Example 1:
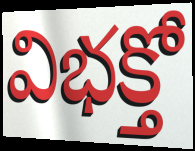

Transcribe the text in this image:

విభక్తో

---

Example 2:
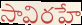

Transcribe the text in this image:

సావిరహే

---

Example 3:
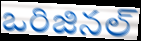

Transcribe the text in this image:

ఒరిజినల్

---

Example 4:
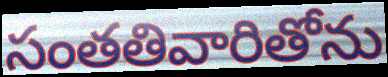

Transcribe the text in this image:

సంతతివారితోను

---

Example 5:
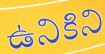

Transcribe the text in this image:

ఉనికిని